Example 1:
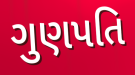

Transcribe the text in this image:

ગુણપતિ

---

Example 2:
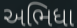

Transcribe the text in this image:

અભિધા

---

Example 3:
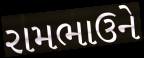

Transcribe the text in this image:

રામભાઉને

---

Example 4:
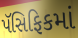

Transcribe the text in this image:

પૅસિફિકમાં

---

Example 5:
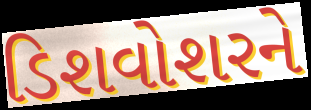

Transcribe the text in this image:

ડિશવોશરને